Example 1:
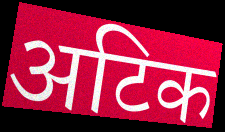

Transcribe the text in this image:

अटिक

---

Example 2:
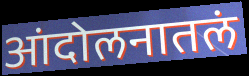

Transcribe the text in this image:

आंदोलनातलं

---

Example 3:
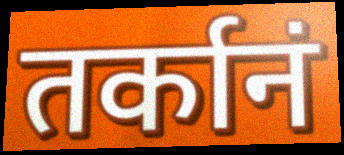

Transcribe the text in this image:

तर्कानं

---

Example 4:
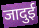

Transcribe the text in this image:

जादुई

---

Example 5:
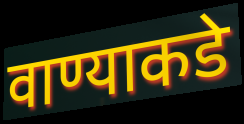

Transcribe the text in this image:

वाण्याकडे